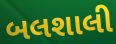
બલશાલી